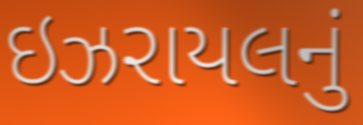
ઇઝરાયલનું